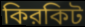
কিরকিট